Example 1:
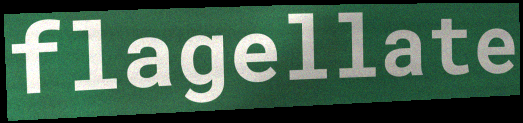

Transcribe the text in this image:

flagellate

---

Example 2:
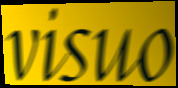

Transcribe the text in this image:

visuo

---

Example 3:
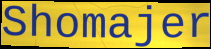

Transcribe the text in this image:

Shomajer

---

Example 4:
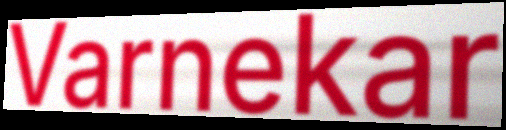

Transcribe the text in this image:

Varnekar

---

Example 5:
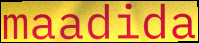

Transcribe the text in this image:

maadida